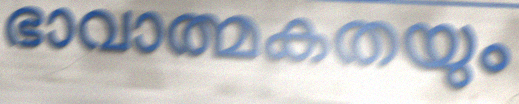
ഭാവാത്മകതയും